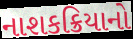
નાશકક્રિયાનો